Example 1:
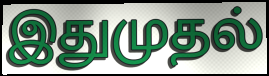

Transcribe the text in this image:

இதுமுதல்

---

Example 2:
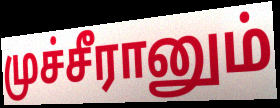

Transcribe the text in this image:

முச்சீரானும்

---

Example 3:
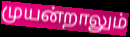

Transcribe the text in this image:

முயன்றாலும்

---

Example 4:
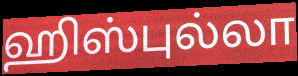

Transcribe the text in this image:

ஹிஸ்புல்லா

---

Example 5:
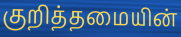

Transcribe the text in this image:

குறித்தமையின்